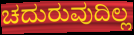
ಚದುರುವುದಿಲ್ಲ